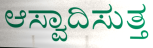
ಆಸ್ವಾದಿಸುತ್ತ